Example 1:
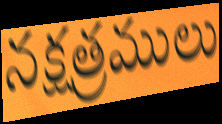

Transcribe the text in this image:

నక్షత్రములు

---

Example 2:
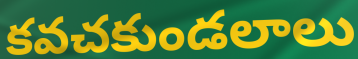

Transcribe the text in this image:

కవచకుండలాలు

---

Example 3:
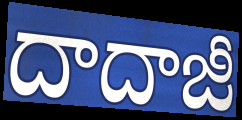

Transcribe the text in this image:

దాదాజీ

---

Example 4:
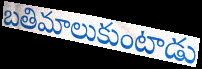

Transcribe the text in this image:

బతిమాలుకుంటాడు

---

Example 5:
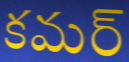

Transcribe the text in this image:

కమర్